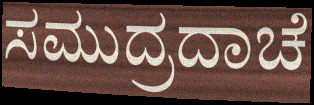
ಸಮುದ್ರದಾಚೆ